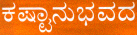
ಕಷ್ಟಾನುಭವದ